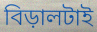
বিড়ালটাই